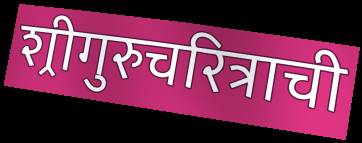
श्रीगुरुचरित्राची